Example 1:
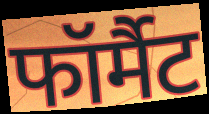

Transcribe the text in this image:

फॉर्मैट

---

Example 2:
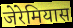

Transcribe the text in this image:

जेरेमियास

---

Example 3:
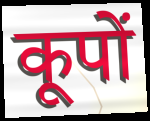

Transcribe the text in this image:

कूपों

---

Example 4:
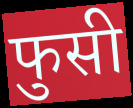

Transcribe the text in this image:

फुसी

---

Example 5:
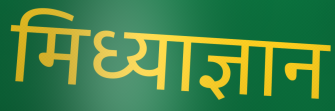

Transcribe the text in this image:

मिध्याज्ञान